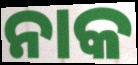
ନାକ